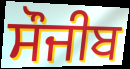
ਸੌਜੀਬ